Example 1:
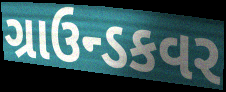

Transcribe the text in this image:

ગ્રાઉન્ડકવર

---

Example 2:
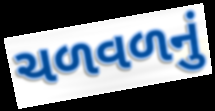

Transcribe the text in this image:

ચળવળનું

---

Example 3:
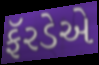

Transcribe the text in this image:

ફૅરડેએ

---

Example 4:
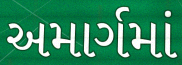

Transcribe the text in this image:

અમાર્ગમાં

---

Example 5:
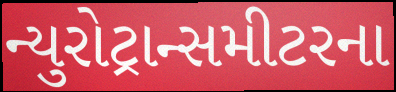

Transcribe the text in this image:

ન્યુરોટ્રાન્સમીટરના